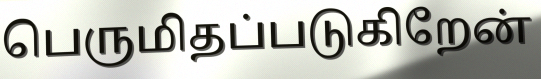
பெருமிதப்படுகிறேன்